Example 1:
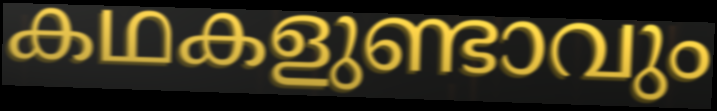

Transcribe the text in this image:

കഥകളുണ്ടാവും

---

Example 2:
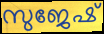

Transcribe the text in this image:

സുജേഷ്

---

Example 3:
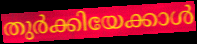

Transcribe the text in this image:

തുർക്കിയേക്കാൾ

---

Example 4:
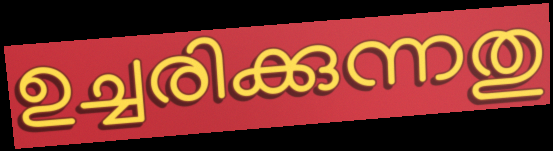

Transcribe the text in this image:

ഉച്ചരിക്കുന്നതു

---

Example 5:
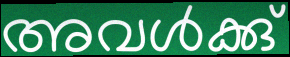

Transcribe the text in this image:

അവൾക്കു്